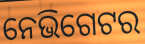
ନେଭିଗେଟର